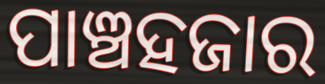
ପାଞ୍ଚହଜାର